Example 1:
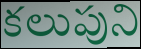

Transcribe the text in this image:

కలుపుని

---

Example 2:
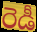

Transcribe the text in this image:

రెడీ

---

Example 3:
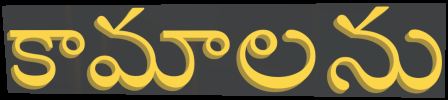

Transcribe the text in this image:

కామాలను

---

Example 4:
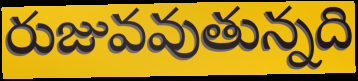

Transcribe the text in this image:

రుజువవుతున్నది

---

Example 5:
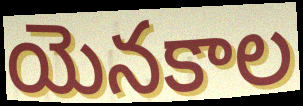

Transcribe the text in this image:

యెనకాల